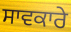
ਸਾਵਕਾਰੇ